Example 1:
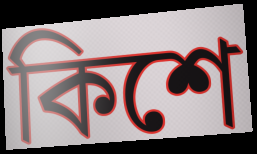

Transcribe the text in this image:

কিশে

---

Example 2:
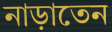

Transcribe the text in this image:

নাড়াতেন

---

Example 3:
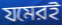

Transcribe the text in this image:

যমেরই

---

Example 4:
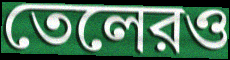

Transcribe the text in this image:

তেলেরও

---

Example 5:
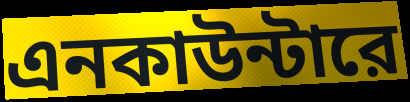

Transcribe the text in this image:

এনকাউন্টারে